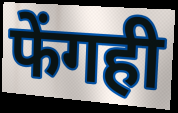
फेंगही